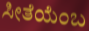
ಸೀತೆಯೆಂಬ